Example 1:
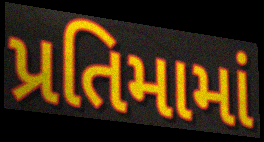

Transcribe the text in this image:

પ્રતિમામાં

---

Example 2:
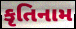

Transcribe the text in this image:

કૃતિનામ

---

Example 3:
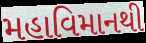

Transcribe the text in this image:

મહાવિમાનથી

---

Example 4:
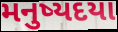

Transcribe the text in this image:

મનુષ્યદયા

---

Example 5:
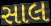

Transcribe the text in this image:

સાલ